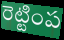
రెట్టింప